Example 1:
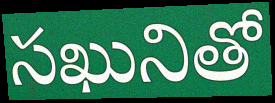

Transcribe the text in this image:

సఖునితో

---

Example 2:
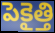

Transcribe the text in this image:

పెకైత్తి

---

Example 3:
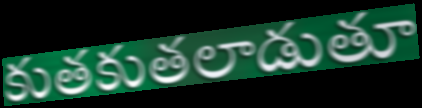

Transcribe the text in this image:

కుతకుతలాడుతూ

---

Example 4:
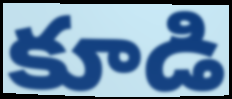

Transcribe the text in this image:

కూడి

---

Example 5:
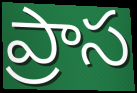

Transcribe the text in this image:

ప్రాస